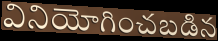
వినియోగించబడిన